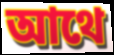
আথে